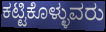
ಕಟ್ಟಿಕೊಳ್ಳುವರು